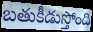
బతుకీడుస్తోంది